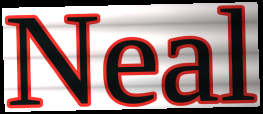
Neal